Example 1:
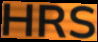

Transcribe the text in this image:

HRS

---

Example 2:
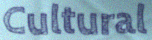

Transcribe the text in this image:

Cultural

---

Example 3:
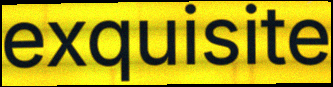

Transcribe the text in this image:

exquisite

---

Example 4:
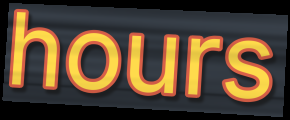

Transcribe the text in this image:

hours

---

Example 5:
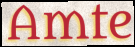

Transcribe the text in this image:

Amte